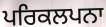
ਪਰਿਕਲਪਨਾ